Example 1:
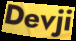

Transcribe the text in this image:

Devji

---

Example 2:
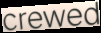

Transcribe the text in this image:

crewed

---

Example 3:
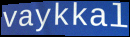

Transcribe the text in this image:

vaykkal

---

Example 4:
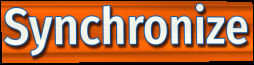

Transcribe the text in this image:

Synchronize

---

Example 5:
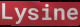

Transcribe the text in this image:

Lysine